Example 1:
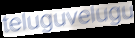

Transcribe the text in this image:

teluguvelugu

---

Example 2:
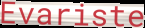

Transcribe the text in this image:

Evariste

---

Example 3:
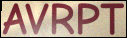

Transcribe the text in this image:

AVRPT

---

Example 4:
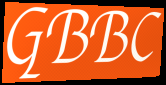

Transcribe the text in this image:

GBBC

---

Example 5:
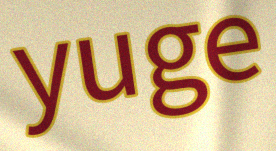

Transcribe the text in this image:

yuge